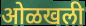
ओळखली